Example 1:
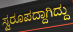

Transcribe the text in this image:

ಸ್ವರೂಪದ್ದಾಗಿದ್ದು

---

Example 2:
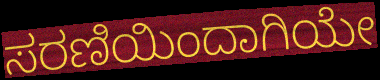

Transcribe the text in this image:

ಸರಣಿಯಿಂದಾಗಿಯೇ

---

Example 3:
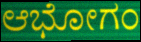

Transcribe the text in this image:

ಆಭೋಗಂ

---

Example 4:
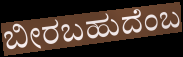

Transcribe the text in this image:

ಬೀರಬಹುದೆಂಬ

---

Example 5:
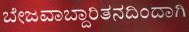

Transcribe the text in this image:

ಬೇಜವಾಬ್ದಾರಿತನದಿಂದಾಗಿ